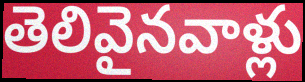
తెలివైనవాళ్లు